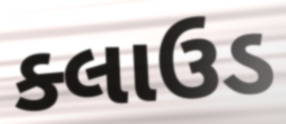
ક્લાઉડ